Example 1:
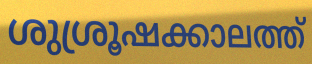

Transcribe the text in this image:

ശുശ്രൂഷക്കാലത്ത്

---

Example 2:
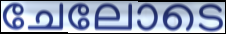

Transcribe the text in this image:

ചേലോടെ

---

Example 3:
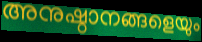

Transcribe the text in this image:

അനുഷ്ഠാനങ്ങളെയും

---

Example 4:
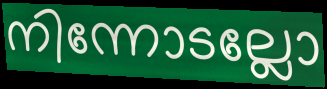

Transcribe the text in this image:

നിന്നോടല്ലോ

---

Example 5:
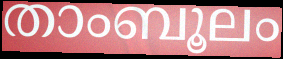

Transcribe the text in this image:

താംബൂലം